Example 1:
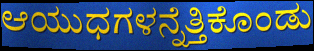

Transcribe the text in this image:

ಆಯುಧಗಳನ್ನೆತ್ತಿಕೊಂಡು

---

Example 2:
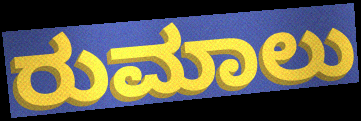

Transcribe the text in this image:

ರುಮಾಲು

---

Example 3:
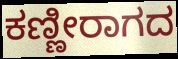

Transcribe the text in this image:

ಕಣ್ಣೀರಾಗದ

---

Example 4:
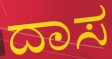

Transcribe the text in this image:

ದಾಸ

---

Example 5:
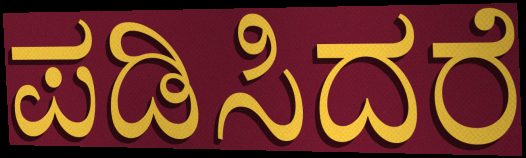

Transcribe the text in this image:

ಪಡಿಸಿದರೆ